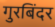
गुरबिंदर